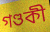
গণ্ডকী